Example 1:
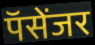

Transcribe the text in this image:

पॅसेंजर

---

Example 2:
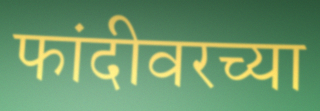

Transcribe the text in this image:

फांदीवरच्या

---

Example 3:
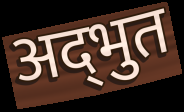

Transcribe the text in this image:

अद्‍भुत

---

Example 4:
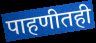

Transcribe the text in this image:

पाहणीतही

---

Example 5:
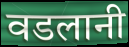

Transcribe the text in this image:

वडलानी